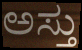
ಅಸ್ತು